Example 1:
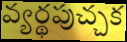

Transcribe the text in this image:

వ్యర్థపుచ్చక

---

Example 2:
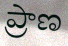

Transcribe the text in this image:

ప్రాణ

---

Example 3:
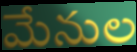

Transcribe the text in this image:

మేనుల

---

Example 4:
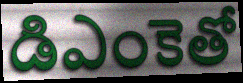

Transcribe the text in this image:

డిఎంకెతో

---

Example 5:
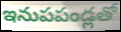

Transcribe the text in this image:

ఇనుపపండ్లతో